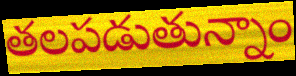
తలపడుతున్నాం